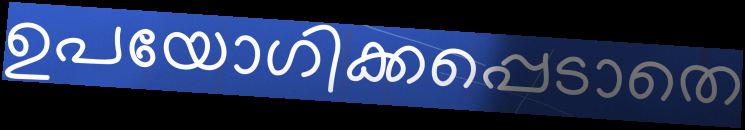
ഉപയോഗിക്കപ്പെടാതെ